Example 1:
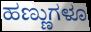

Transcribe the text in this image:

ಹಣ್ಣುಗಳೂ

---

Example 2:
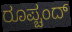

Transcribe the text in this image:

ರೂಪ್ಚಂದ್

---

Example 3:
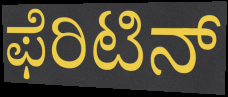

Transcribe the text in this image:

ಫೆರಿಟಿನ್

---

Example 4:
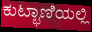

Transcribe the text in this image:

ಕುಟ್ಟಾಣಿಯಲ್ಲಿ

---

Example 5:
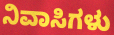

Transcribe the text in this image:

ನಿವಾಸಿಗಳು